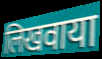
लिखवाया